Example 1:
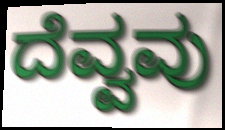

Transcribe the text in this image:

ದೆವ್ವವು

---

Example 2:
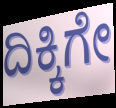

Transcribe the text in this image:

ದಿಕ್ಕಿಗೇ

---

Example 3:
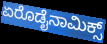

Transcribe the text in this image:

ಏರೊಡೈನಾಮಿಕ್ಸ್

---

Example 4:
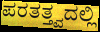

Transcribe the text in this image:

ಪರತತ್ತ್ವದಲ್ಲಿ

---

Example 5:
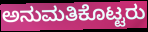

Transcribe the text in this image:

ಅನುಮತಿಕೊಟ್ಟರು